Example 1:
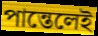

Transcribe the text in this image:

পান্তেলেই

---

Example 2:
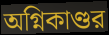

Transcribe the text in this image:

অগ্নিকাণ্ডর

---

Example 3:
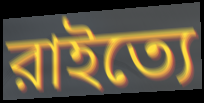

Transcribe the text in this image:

রাইত্যে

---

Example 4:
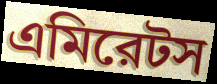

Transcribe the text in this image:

এমিরেটস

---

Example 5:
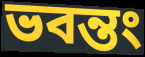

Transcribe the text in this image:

ভবন্তং